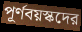
পূর্ণবয়স্কদের